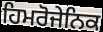
ਹਿਮਰੋਜੇਨਿਕ